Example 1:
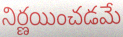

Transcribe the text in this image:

నిర్ణయించడమే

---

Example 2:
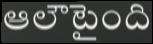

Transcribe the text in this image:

ఆలౌటైంది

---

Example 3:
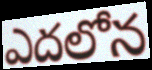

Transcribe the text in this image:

ఎదలోన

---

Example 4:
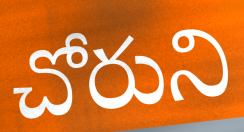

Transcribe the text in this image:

చోరుని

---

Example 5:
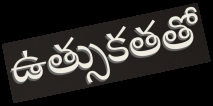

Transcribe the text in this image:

ఉత్సుకతతో